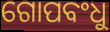
ଗୋପବଂଧୁ